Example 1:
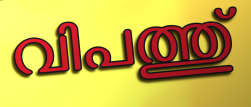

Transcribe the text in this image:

വിപത്തു്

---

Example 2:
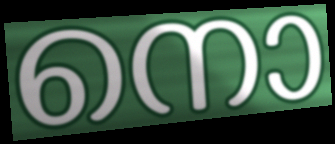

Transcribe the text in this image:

നൊ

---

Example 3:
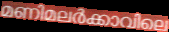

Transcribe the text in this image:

മണിമലർക്കാവിലെ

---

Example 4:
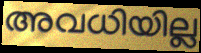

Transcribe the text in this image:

അവധിയില്ല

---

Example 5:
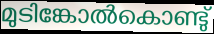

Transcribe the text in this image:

മുടിങ്കോൽകൊണ്ടു്